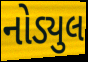
નોડ્યુલ